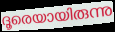
ദൂരെയായിരുന്നു